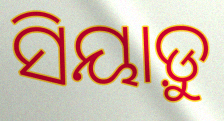
ସିୟାଡ଼ୁ